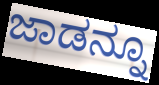
ಜಾಡನ್ನೂ